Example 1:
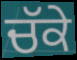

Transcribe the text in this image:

ਚੱਕੇ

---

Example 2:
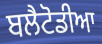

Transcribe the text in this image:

ਬਲੈਟੋਡੀਆ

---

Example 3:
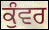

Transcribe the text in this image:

ਕੁੰਵਰ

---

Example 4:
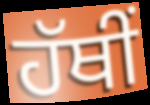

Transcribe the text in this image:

ਹੱਥੀਂ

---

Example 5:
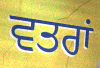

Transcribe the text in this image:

ਵਤਰਾਂ